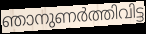
ഞാനുണർത്തിവിട്ട